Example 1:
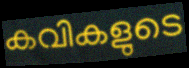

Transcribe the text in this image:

കവികളുടെ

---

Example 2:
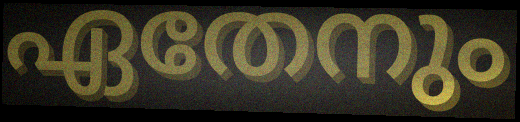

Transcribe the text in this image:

ഏതേനും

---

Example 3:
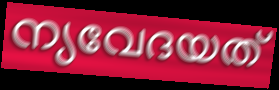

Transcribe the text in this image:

ന്യവേദയത്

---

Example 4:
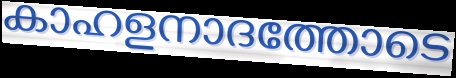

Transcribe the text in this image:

കാഹളനാദത്തോടെ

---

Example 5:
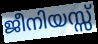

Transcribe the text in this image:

ജീനിയസ്സ്